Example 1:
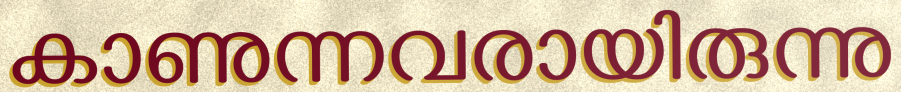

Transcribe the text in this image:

കാണുന്നവരായിരുന്നു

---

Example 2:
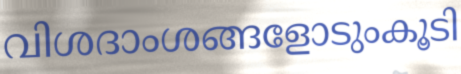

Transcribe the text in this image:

വിശദാംശങ്ങളോടുംകൂടി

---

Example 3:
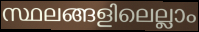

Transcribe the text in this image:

സ്ഥലങ്ങളിലെല്ലാം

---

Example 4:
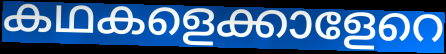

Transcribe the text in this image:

കഥകളെക്കാളേറെ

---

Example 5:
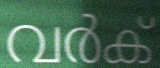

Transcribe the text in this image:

വർക്